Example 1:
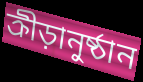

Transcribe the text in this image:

ক্ৰীড়ানুষ্ঠান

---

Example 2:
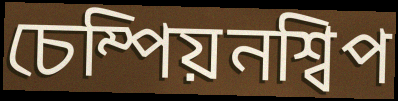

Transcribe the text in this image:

চেম্পিয়নশ্বিপ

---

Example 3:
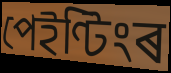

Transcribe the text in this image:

পেইণ্টিংৰ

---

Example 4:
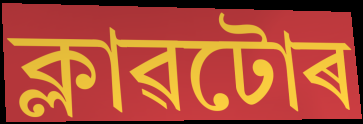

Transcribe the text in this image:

ক্লাৱটোৰ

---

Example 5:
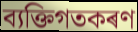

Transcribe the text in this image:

ব্যক্তিগতকৰণ